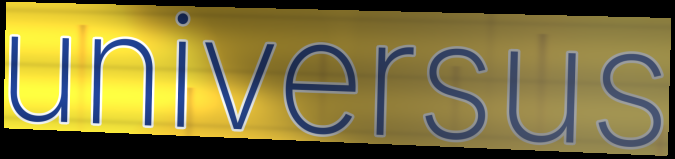
universus